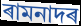
ৰামনাদৰ